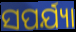
ସପର୍ଯ୍ୟା